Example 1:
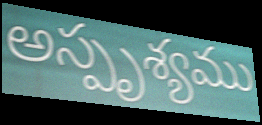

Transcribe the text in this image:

అస్పృశ్యము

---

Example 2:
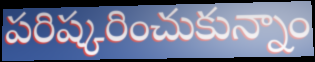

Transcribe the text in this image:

పరిష్కరించుకున్నాం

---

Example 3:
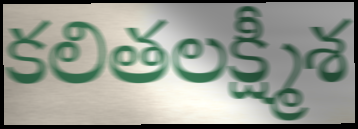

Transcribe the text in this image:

కలితలక్ష్మీశ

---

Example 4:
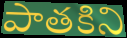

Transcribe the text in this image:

పాతకిని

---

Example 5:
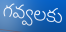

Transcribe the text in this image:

గవ్వలకు